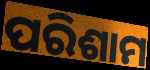
ପରିଶାମ